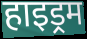
हाइड्रम